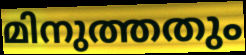
മിനുത്തതും